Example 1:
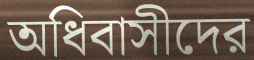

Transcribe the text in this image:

অধিবাসীদের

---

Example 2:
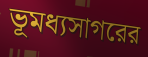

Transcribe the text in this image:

ভূমধ্যসাগরের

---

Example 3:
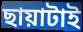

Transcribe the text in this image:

ছায়াটাই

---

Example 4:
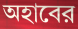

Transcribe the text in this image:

অহাবের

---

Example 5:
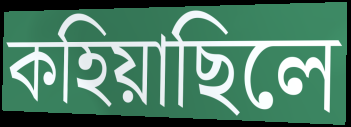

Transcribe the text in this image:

কহিয়াছিলে